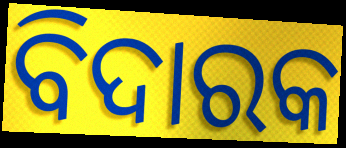
ବିଦାରକ